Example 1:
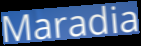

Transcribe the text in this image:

Maradia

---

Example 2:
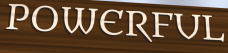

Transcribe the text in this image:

POWERFUL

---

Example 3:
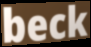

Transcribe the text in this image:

beck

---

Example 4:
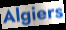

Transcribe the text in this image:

Algiers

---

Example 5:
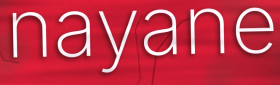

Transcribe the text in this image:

nayane